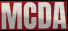
MCDA